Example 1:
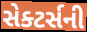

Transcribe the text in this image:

સેક્ટર્સની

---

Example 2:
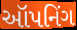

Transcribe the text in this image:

ઑપનિંગ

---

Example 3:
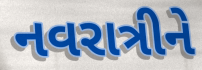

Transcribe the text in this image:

નવરાત્રીને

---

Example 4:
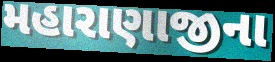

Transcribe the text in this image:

મહારાણાજીના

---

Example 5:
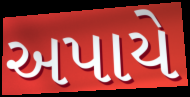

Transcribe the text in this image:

અપાયે